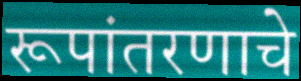
रूपांतरणाचे